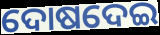
ଦୋଷଦେଇ